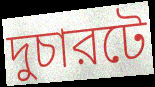
দুচারটে